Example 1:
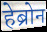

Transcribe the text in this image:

हेब्रोन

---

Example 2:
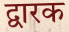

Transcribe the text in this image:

द्वारक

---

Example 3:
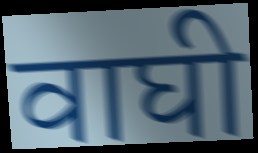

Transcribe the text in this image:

वाघी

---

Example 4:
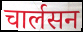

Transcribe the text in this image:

चार्लसन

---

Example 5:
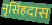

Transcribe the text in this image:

नृसिंहदास